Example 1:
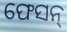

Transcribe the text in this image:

ଫେସନ୍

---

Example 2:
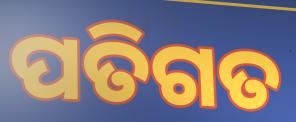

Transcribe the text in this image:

ପତିଗତ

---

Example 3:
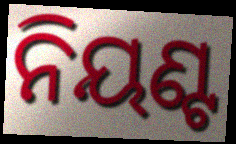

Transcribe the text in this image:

ନିୟଣ୍ଟ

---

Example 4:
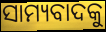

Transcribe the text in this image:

ସାମ୍ୟବାଦକୁ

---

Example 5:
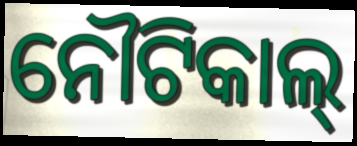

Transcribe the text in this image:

ନୌଟିକାଲ୍